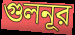
গুলনূর